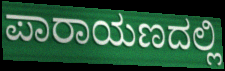
ಪಾರಾಯಣದಲ್ಲಿ